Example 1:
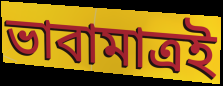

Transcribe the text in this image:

ভাবামাত্রই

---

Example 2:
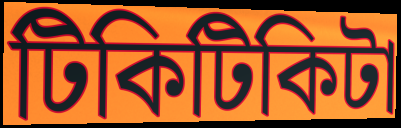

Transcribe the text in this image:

টিকিটিকিটা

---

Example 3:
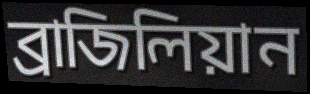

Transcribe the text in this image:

ব্রাজিলিয়ান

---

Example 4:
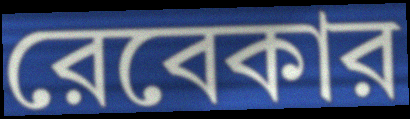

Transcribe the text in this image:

রেবেকার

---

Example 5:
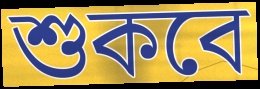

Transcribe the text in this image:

শুকবে